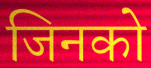
जिनको